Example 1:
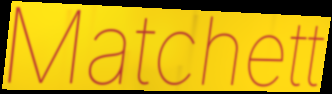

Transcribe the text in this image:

Matchett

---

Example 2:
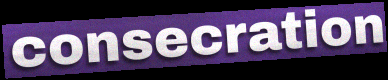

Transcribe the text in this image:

consecration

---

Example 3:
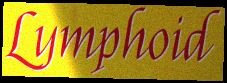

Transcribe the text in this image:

Lymphoid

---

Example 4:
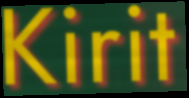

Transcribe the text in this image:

Kirit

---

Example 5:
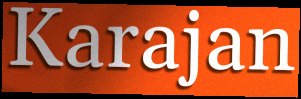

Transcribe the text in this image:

Karajan